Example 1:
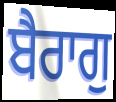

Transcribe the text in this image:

ਬੈਰਾਗੁ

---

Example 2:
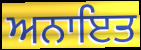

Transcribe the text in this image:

ਅਨਾਇਤ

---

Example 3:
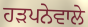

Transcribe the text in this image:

ਹੜਪਨੇਵਾਲੇ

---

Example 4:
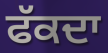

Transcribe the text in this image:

ਫੱਕਦਾ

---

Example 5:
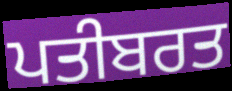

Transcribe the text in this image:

ਪਤੀਬਰਤ